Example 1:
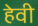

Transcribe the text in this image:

हेवी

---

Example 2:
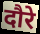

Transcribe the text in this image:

दौरे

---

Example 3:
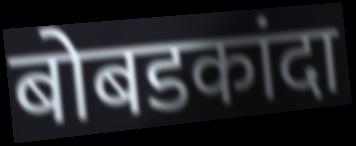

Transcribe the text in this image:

बोबडकांदा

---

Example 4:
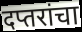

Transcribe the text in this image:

दप्तरांचा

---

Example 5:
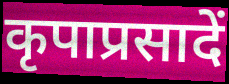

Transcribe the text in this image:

कृपाप्रसादें